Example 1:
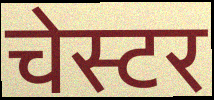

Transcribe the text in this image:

चेस्टर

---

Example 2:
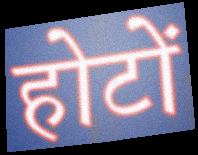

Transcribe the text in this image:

होटों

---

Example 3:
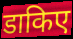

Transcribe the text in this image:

डाकिए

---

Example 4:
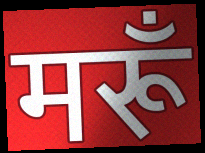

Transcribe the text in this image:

मरूँ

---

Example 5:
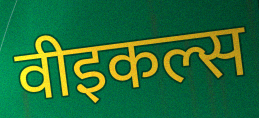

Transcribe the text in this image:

वीइकल्‍स